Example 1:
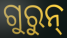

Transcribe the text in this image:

ଗୁରୁନ୍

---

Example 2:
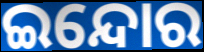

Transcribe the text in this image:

ଇନ୍ଦୋର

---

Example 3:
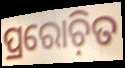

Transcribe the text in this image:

ପ୍ରରୋଚ଼ିତ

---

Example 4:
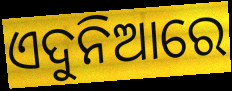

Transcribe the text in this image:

ଏଦୁନିଆରେ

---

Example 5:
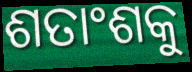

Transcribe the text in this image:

ଶତାଂଶକୁ